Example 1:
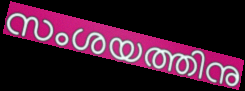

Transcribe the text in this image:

സംശയത്തിനു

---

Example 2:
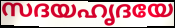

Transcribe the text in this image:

സദയഹൃദയേ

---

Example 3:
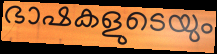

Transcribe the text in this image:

ഭാഷകളുടെയും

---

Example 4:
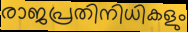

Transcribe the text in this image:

രാജപ്രതിനിധികളും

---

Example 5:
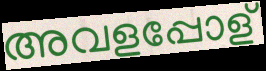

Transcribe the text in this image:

അവളപ്പോള്